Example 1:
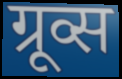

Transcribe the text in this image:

ग्रूव्स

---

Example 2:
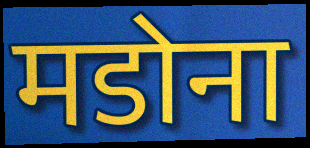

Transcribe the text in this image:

मडोना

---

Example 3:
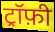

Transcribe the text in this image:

ट्रॉफ़ी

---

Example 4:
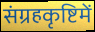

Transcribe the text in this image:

संग्रहकृष्टिमें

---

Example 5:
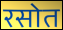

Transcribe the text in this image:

रसोत